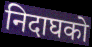
निदाघको